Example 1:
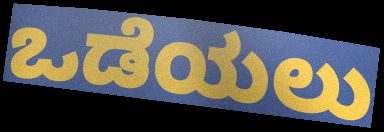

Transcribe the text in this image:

ಒಡೆಯಲು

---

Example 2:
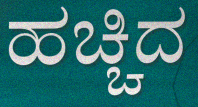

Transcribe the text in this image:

ಹಚ್ಚಿದ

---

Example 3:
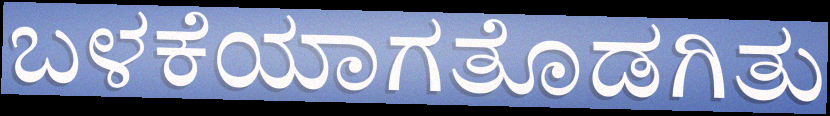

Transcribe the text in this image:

ಬಳಕೆಯಾಗತೊಡಗಿತು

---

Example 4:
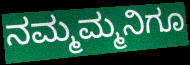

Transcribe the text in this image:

ನಮ್ಮಮ್ಮನಿಗೂ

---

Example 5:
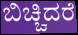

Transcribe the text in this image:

ಬಿಚ್ಚಿದರೆ